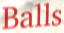
Balls